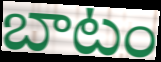
బాటం